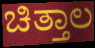
ಚಿತ್ತಾಲ